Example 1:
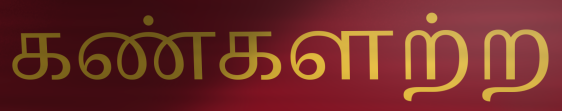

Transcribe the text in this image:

கண்களற்ற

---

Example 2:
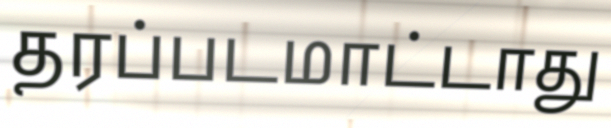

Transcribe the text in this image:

தரப்படமாட்டாது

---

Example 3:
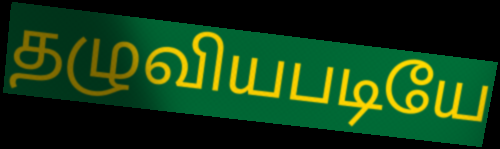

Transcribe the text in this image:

தழுவியபடியே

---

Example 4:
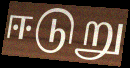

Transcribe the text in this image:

ஈடுறு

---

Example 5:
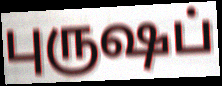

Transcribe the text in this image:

புருஷப்